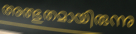
അത്ഭുതമായിരുന്നു